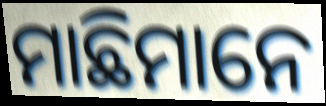
ମାଛିମାନେ